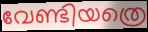
വേണ്ടിയത്രെ